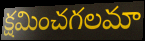
క్షమించగలమా